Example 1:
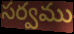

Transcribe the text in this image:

సర్వము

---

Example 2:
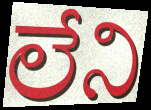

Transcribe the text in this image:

లేని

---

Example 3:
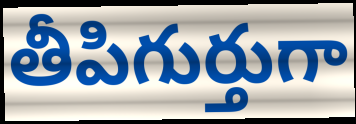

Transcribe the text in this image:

తీపిగుర్తుగా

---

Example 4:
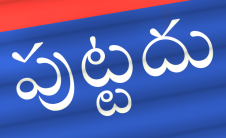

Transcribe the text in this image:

పుట్టదు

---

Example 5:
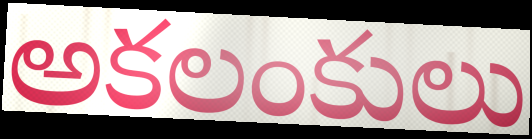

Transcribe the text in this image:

అకలంకులు